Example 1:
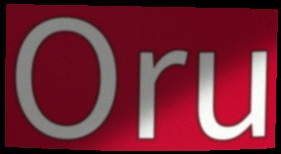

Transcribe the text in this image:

Oru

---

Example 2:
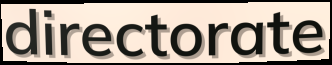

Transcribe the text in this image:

directorate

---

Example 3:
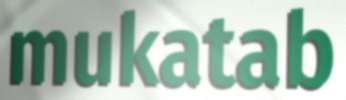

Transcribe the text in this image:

mukatab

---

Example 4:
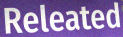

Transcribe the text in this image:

Releated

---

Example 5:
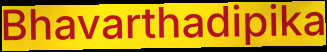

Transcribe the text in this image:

Bhavarthadipika